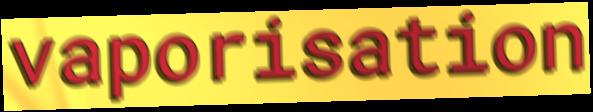
vaporisation